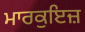
ਮਾਰਕੁਇਜ਼